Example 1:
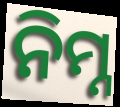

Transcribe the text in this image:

ନିମ୍ନ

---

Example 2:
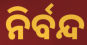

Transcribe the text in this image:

ନିର୍ବନ୍ଦ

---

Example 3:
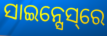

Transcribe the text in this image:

ସାଇନ୍ସେସ୍‌ରେ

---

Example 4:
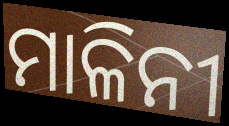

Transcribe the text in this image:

ମାଳିନୀ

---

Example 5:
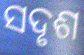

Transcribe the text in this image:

ସଦୃଶ